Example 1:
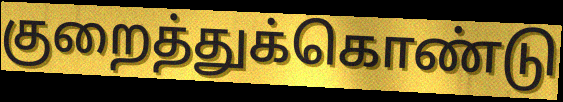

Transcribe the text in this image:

குறைத்துக்கொண்டு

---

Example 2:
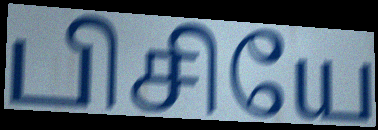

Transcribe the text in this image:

பிசியே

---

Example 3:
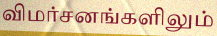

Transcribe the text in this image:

விமர்சனங்களிலும்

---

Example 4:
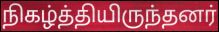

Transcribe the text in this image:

நிகழ்த்தியிருந்தனர்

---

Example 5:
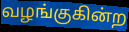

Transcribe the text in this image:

வழங்குகின்ற